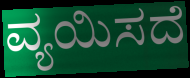
ವ್ಯಯಿಸದೆ